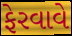
ફેરવાવે